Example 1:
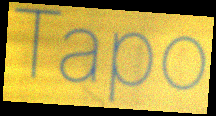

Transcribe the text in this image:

Tapo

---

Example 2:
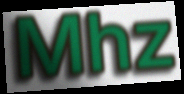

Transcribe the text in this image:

Mhz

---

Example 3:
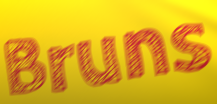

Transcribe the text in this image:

Bruns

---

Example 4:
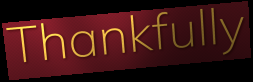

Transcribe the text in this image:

Thankfully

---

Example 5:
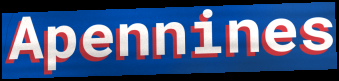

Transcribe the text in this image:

Apennines